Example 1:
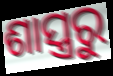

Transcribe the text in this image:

ଶାସ୍ତ୍ରରୁ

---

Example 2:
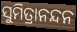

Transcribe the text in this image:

ସୁମିତ୍ରାନନ୍ଦନ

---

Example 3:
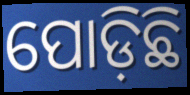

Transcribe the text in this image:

ପୋଡ଼ିଛି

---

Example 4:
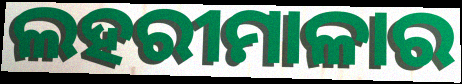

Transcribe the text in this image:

ଲହରୀମାଳାର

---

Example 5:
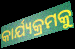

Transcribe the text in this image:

କାର୍ଯ୍ୟକ୍ରମକୁ